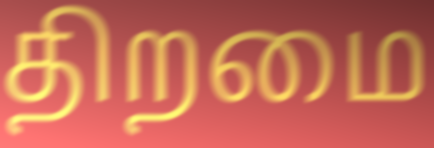
திறமை